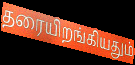
தரையிறங்கியதும்